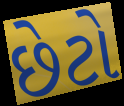
છેટો